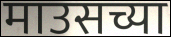
माउसच्या